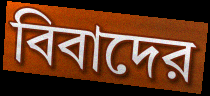
বিবাদের